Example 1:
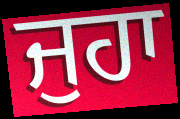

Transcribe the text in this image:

ਜੁਹਾ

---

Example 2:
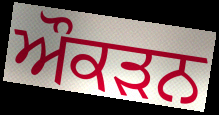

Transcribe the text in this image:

ਔਕੜਨ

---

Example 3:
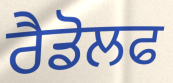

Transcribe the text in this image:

ਰੈਡੋਲਫ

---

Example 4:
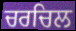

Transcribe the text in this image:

ਚਰਚਿਲ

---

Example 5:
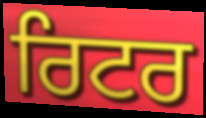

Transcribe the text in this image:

ਰਿਟਰ